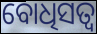
ବୋଧିସତ୍ୱ